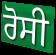
ਰੋਸੀ